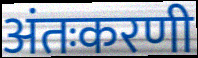
अंतःकरणी